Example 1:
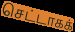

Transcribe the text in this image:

செட்டாகக்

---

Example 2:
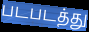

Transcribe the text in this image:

படபடத்து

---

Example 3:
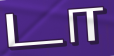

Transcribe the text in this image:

டா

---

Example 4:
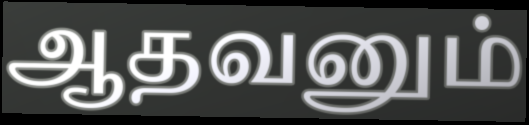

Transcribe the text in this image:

ஆதவனும்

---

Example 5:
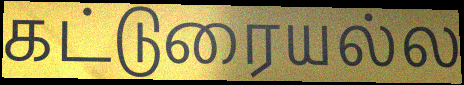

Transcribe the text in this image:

கட்டுரையல்ல